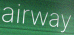
airway